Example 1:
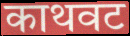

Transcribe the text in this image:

काथवट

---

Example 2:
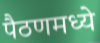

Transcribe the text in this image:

पैठणमध्ये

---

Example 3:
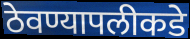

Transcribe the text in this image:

ठेवण्यापलीकडे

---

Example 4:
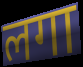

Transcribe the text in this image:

लगा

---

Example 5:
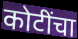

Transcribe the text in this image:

कोटींचा